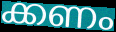
ക്കണം